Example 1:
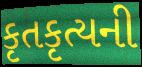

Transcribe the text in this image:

કૃતકૃત્યની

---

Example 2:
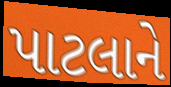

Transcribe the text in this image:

પાટલાને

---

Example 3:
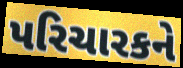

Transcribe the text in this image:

પરિચારકને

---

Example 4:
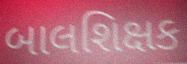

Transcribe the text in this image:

બાલશિક્ષક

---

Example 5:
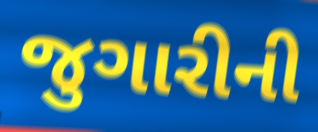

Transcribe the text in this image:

જુગારીની